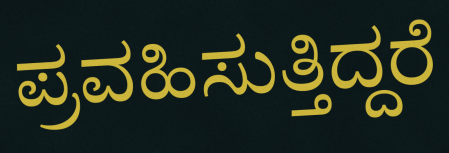
ಪ್ರವಹಿಸುತ್ತಿದ್ದರೆ